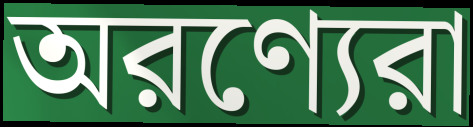
অরণ্যেরা